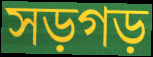
সড়গড়